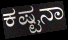
ಕಷ್ಟನಾ